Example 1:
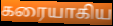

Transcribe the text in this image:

கரையாகிய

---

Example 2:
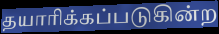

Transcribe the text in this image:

தயாரிக்கப்படுகின்ற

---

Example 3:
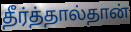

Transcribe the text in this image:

தீர்த்தால்தான்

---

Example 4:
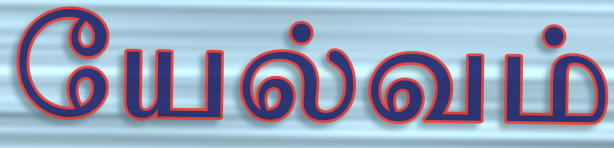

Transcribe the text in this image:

யேல்வம்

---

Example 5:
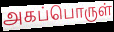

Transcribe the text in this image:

அகப்பொருள்